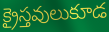
క్రైస్తవులుకూడ